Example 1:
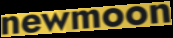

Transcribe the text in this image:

newmoon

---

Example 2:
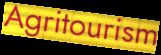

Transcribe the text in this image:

Agritourism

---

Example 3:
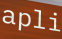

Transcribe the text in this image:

apli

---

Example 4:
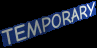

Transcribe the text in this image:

TEMPORARY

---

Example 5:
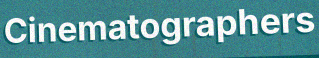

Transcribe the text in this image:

Cinematographers